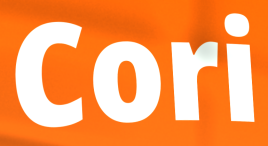
Cori